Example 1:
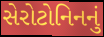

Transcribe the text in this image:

સેરોટોનિનનું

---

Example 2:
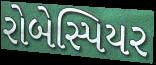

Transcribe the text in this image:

રોબેસ્પિયર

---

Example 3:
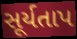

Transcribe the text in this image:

સૂર્યતાપ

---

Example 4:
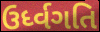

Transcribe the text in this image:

ઉર્ધ્વગતિ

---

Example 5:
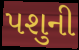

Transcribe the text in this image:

પશુની